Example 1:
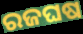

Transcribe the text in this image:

ରଜଘଷ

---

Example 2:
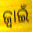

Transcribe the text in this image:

ଜ୍ଵାଇଁ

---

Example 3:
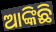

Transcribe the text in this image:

ଆଙ୍କିଛି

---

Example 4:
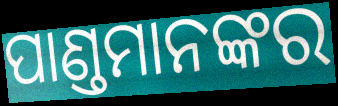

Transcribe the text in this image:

ପାଣ୍ଡମାନଙ୍କର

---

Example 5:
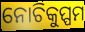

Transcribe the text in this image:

ନୋଚିକୁପ୍ପମ